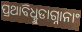
ପ୍ରଥାବିଧ୍ହୁଡାଗ୍ନାନାଂ